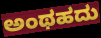
ಅಂಥಹದು